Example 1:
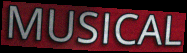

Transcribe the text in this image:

MUSICAL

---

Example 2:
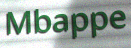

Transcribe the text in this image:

Mbappe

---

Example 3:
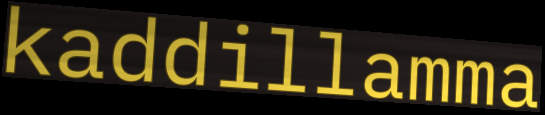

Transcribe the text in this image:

kaddillamma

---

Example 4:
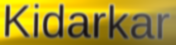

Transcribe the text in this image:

Kidarkar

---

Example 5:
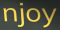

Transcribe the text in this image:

njoy